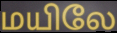
மயிலே